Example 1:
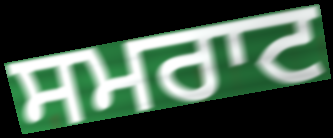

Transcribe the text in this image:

ਸਮਰਾਟ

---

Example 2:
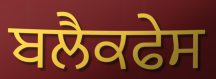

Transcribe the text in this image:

ਬਲੈਕਫੇਸ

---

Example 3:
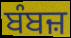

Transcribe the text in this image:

ਬੰਬਜ਼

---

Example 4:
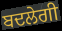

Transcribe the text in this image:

ਬਦਲੇਗੀ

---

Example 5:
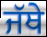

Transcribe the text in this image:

ਜੱਥੇ